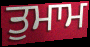
ਤੁਮਾਮ